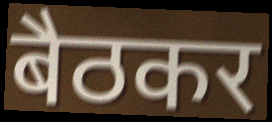
बैठकर